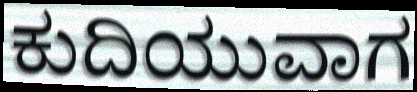
ಕುದಿಯುವಾಗ